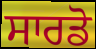
ਸਾਰਡੋ